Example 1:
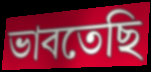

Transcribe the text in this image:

ভাবতেছি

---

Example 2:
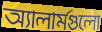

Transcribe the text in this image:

অ্যালার্মগুলো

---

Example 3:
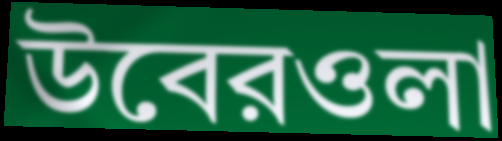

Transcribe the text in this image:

উবেরওলা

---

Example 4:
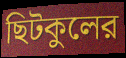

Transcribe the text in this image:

ছিটকুলের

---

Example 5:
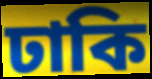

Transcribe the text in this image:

ঢাকি